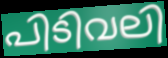
പിടിവലി